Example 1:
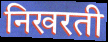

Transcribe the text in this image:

निखरती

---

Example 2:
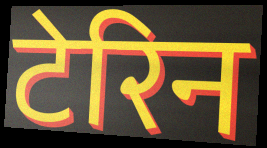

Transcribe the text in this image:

टेरिन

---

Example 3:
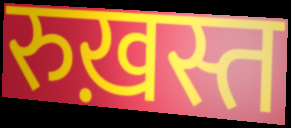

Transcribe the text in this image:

रुख़स्त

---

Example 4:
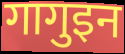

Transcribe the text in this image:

गागुइन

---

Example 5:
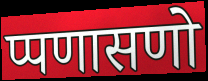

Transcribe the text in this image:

प्पणासणो